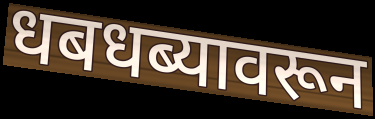
धबधब्यावरून